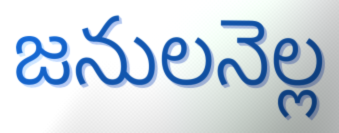
జనులనెల్ల